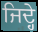
ਜਿਦ੍ਹੇ